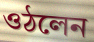
ওঠলেন